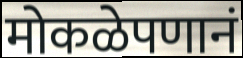
मोकळेपणानं